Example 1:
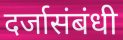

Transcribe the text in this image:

दर्जासंबंधी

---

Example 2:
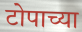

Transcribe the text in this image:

टोपाच्या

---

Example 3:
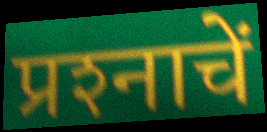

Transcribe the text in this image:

प्रश्नाचें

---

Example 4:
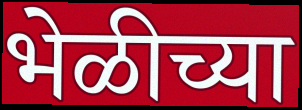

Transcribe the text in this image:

भेळीच्या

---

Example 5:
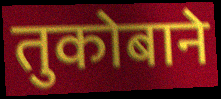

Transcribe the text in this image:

तुकोबाने